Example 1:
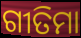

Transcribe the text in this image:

ଗୀତିମା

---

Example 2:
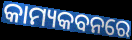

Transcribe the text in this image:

କାମ୍ୟକବନରେ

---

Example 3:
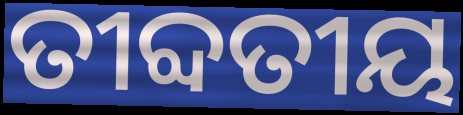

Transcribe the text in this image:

ତୀବ୍ଦତୀୟ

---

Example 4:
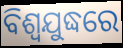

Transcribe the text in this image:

ବିଶ୍ଵଯୁଦ୍ଧରେ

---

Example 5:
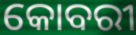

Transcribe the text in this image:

କୋବରୀ